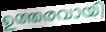
ഉത്തരവായി